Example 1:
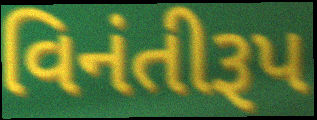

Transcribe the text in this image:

વિનંતીરૂપ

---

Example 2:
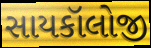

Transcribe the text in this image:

સાયકૉલોજી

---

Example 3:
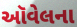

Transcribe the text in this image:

ઑવેલના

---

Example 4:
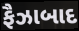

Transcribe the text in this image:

ફૈઝાબાદ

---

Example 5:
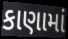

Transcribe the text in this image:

કાણામાં